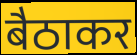
बैठाकर